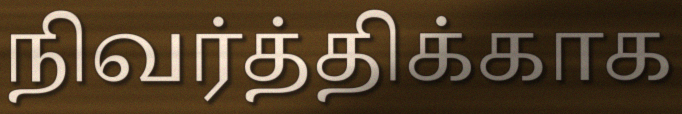
நிவர்த்திக்காக